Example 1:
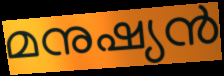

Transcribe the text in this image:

മനുഷ്യൻ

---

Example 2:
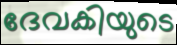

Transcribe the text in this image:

ദേവകിയുടെ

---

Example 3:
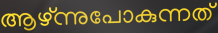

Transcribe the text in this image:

ആഴ്ന്നുപോകുന്നത്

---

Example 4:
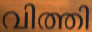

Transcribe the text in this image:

വിത്തി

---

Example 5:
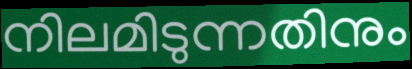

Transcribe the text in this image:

നിലമിടുന്നതിനും